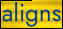
aligns